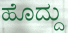
ಹೊದ್ದು